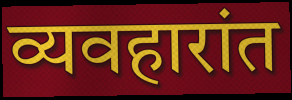
व्यवहारांत